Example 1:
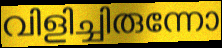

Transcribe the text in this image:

വിളിച്ചിരുന്നോ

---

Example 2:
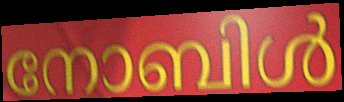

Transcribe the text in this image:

നോബിൾ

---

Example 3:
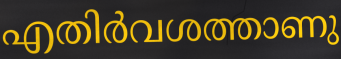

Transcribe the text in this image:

എതിർവശത്താണു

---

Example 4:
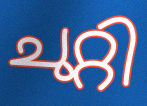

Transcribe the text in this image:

ചുറ്റി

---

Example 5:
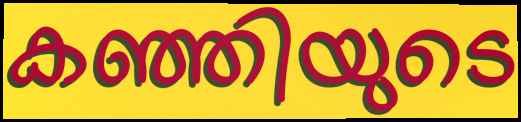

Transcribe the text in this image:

കഞ്ഞിയുടെ